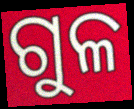
ଗୁଳ